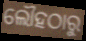
ଲୌହଠାରୁ